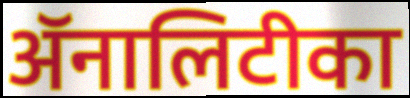
ॲनालिटीका